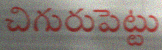
చిగురుపెట్టు